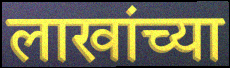
लाखांच्या